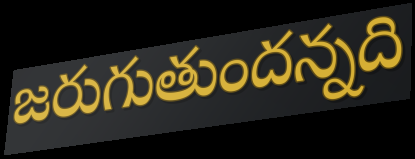
జరుగుతుందన్నది